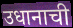
उधानाची